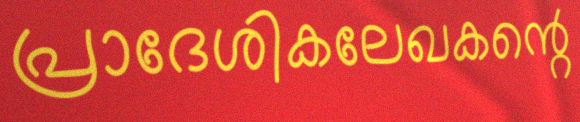
പ്രാദേശികലേഖകന്റെ